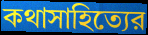
কথাসাহিত্যের